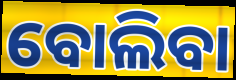
ବୋଲିବା